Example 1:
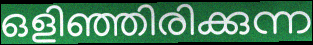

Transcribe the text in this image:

ഒളിഞ്ഞിരിക്കുന്ന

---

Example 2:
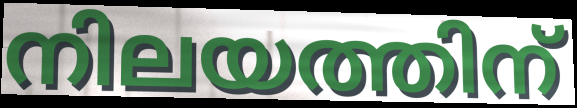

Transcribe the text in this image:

നിലയത്തിന്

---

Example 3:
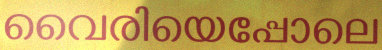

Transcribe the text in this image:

വൈരിയെപ്പോലെ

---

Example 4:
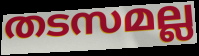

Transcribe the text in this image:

തടസമല്ല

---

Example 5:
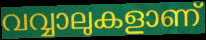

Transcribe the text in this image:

വവ്വാലുകളാണ്